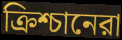
ক্রিশ্চানেরা